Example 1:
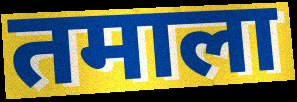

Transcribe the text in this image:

तमाला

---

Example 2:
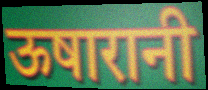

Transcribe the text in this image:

ऊषारानी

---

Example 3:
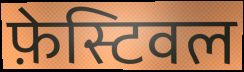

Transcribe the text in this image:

फ़ेस्टिवल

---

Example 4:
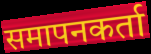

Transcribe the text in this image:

समापनकर्ता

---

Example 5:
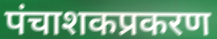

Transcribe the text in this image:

पंचाशकप्रकरण